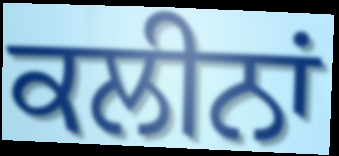
ਕਲੀਨਾਂ